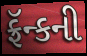
ફ્રૅન્કની